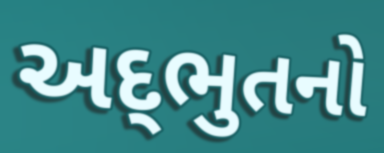
અદ્‌ભુતનો